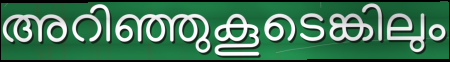
അറിഞ്ഞുകൂടെങ്കിലും